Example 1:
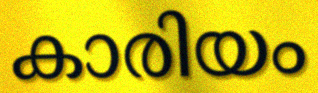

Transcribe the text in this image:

കാരിയം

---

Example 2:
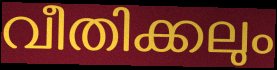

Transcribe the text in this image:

വീതിക്കലും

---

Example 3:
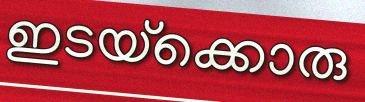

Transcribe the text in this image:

ഇടയ്‌ക്കൊരു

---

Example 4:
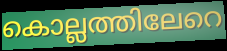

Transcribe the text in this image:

കൊല്ലത്തിലേറെ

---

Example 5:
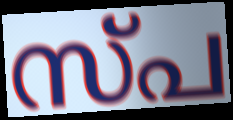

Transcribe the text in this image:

സ്പ